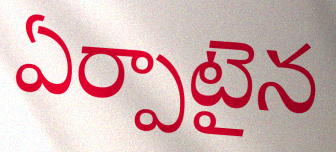
ఏర్పాటైన